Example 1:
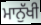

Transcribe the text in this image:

ਮਾਨੁੱਖੀ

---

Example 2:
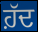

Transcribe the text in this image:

ਹ਼ੱਦ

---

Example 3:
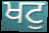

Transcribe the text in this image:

ਖਟੁ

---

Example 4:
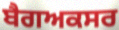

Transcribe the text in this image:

ਬੈਗਅਕਸਰ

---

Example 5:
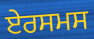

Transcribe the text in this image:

ਏਰਸਮਸ